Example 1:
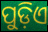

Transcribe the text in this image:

ପୁଡ଼ିଏ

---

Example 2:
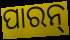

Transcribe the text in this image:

ପାରନ୍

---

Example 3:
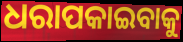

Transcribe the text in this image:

ଧରାପକାଇବାକୁ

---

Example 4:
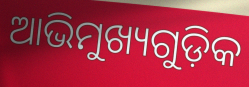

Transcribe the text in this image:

ଆଭିମୁଖ୍ୟଗୁଡ଼ିକ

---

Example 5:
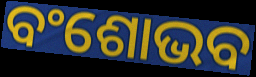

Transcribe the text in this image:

ବଂଶୋଭବ